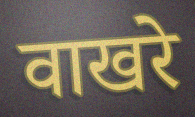
वाखरे